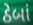
ઠેબાં